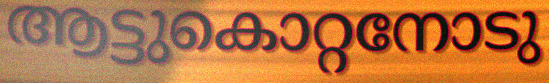
ആട്ടുകൊറ്റനോടു